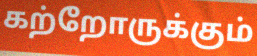
கற்றோருக்கும்